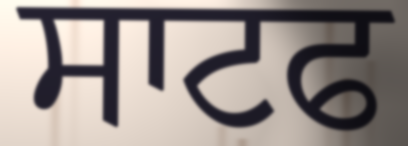
ਸਾਟਫ